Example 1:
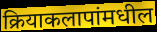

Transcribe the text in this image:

क्रियाकलापांमधील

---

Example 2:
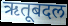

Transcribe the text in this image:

ऋतूबदल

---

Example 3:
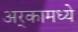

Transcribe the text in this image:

अर्कामध्ये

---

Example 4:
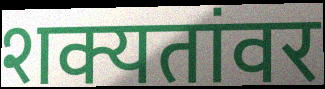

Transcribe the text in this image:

शक्यतांवर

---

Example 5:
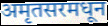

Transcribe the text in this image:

अमृतसरमधून